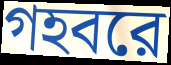
গহবরে